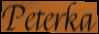
Peterka